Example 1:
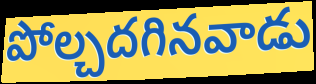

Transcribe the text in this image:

పోల్చదగినవాడు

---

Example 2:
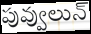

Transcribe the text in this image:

పువ్వులున్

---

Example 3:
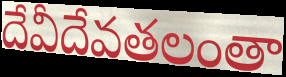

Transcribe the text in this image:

దేవీదేవతలంతా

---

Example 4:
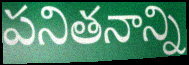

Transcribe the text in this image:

పనితనాన్ని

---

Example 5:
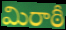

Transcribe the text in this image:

మిరాఠీ